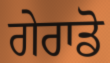
ਗੇਰਾਡੋ